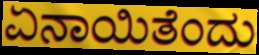
ಏನಾಯಿತೆಂದು